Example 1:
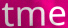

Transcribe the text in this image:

tme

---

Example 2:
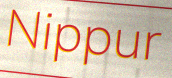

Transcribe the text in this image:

Nippur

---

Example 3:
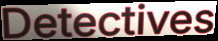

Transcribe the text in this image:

Detectives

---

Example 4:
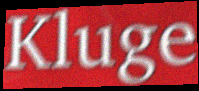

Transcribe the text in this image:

Kluge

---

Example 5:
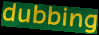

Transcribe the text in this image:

dubbing